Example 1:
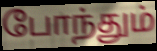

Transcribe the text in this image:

போந்தும்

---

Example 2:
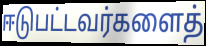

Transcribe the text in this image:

ஈடுபட்டவர்களைத்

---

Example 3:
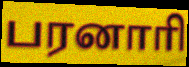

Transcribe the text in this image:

பரனாரி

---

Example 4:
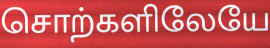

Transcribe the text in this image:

சொற்களிலேயே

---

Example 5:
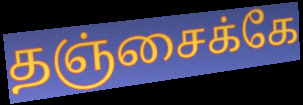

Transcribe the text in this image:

தஞ்சைக்கே